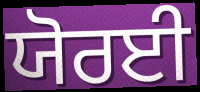
ਯੋਰਈ